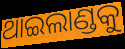
ଥାଇଲାଣ୍ଡକୁ